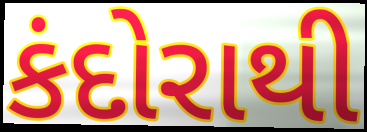
કંદોરાથી